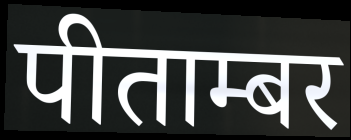
पीताम्बर